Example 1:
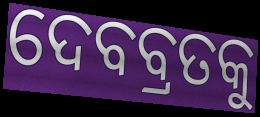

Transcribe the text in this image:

ଦେବବ୍ରତକୁ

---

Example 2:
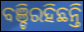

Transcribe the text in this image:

ବଞ୍ଚିରହିଛନ୍ତି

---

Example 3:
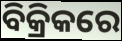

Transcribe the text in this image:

ବିକ୍ରିକରେ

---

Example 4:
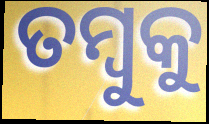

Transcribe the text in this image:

ତମ୍ବୁକୁ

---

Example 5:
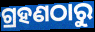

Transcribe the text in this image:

ଗ୍ରହଣଠାରୁ